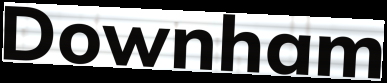
Downham